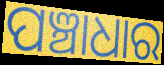
ପଞ୍ଚାଧାର